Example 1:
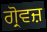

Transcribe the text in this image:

ਗ੍ਰੋਵਜ਼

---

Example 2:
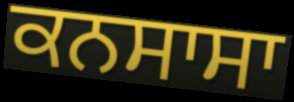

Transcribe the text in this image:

ਕਨਸਾਸਾ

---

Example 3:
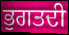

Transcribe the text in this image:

ਭੁਗਤਦੀ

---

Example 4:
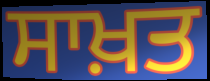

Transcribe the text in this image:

ਸਾਖ਼ਤ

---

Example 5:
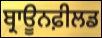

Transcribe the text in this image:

ਬ੍ਰਾਊਨਫ਼ੀਲਡ